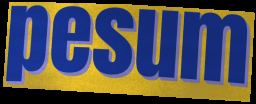
pesum